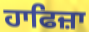
ਹਾਫਿਜ਼ਾ